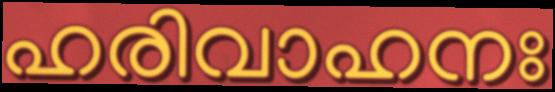
ഹരിവാഹനഃ